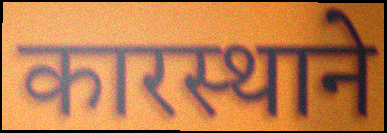
कारस्थाने